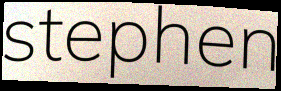
stephen